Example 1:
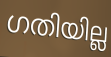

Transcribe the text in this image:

ഗതിയില്ല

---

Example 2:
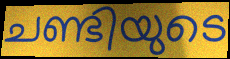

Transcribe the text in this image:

ചണ്ടിയുടെ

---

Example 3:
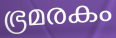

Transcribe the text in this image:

ഭ്രമരകം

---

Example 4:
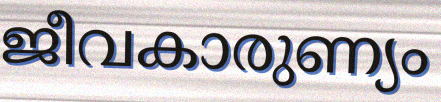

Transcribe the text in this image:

ജീവകാരുണ്യം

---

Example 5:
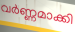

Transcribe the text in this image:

വർണ്ണമാക്കി